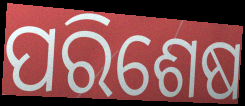
ପରିଶେଷ